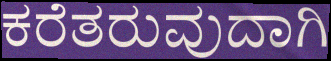
ಕರೆತರುವುದಾಗಿ